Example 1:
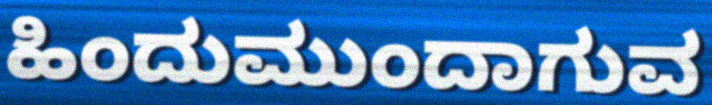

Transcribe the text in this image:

ಹಿಂದುಮುಂದಾಗುವ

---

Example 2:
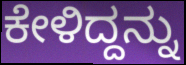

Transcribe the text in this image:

ಕೇಳಿದ್ದನ್ನು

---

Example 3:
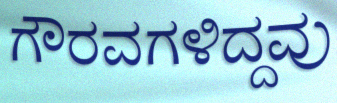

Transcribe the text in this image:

ಗೌರವಗಳಿದ್ದವು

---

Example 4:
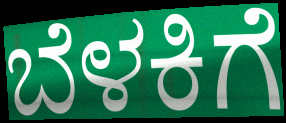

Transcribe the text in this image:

ಬೆಳಕಿಗೆ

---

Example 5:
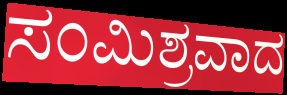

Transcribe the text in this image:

ಸಂಮಿಶ್ರವಾದ